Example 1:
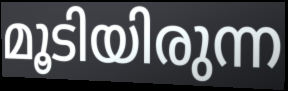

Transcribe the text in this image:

മൂടിയിരുന്ന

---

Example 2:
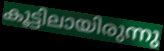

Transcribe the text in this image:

കൂട്ടിലായിരുന്നു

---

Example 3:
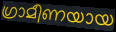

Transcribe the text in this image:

ഗ്രാമീണയായ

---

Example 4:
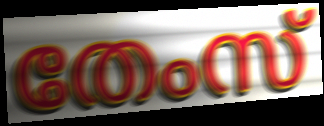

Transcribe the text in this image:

തേംസ്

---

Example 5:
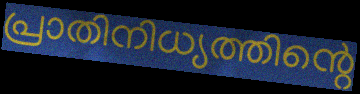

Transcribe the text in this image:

പ്രാതിനിധ്യത്തിന്റെ